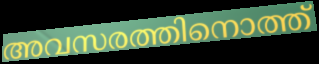
അവസരത്തിനൊത്ത്